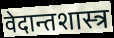
वेदान्तशास्त्र